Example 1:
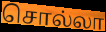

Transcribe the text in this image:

சொல்லா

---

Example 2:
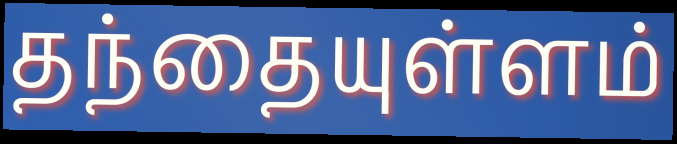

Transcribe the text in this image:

தந்தையுள்ளம்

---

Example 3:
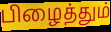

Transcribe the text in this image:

பிழைத்தும்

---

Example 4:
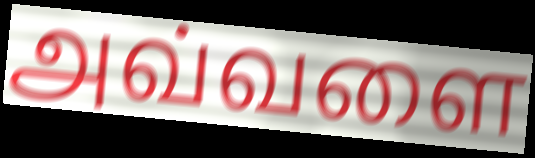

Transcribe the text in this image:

அவ்வளை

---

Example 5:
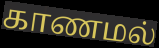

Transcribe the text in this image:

காணமல்